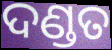
ଦଣ୍ଡତ